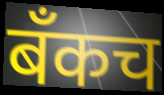
बँकच